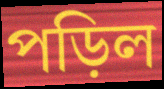
পড়িল